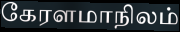
கேரளமாநிலம்